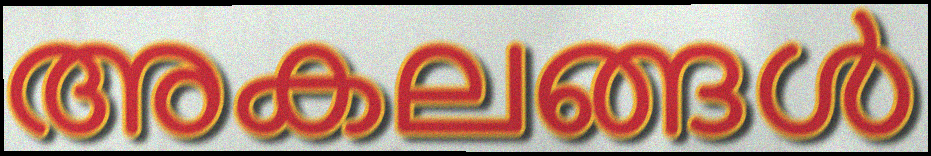
അകലങ്ങൾ